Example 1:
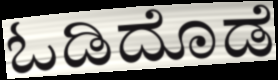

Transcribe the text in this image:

ಓಡಿದೊಡೆ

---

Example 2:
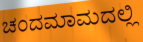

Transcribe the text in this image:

ಚಂದಮಾಮದಲ್ಲಿ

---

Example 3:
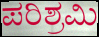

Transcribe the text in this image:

ಪರಿಶ್ರಮಿ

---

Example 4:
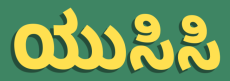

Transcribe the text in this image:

ಯುಸಿಸಿ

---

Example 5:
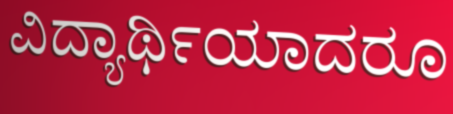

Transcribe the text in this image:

ವಿದ್ಯಾರ್ಥಿಯಾದರೂ